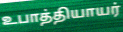
உபாத்தியாயர்